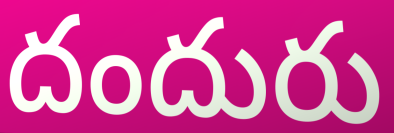
దందురు